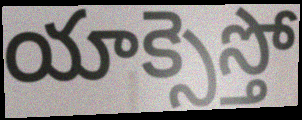
యాక్సెస్తో